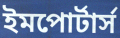
ইমপোর্টার্স